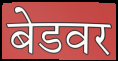
बेडवर